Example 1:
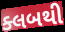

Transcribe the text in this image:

ક્લબથી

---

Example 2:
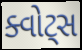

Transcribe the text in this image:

ક્વોટ્સ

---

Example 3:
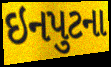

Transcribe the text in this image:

ઇનપુટના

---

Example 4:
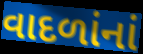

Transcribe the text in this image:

વાદળાંનાં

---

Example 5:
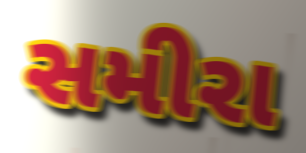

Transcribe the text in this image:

સમીરા